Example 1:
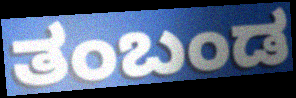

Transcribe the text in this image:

ತಂಬಂಡ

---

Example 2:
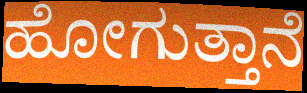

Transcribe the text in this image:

ಹೋಗುತ್ತಾನೆ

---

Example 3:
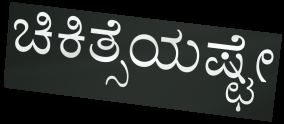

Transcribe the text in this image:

ಚಿಕಿತ್ಸೆಯಷ್ಟೇ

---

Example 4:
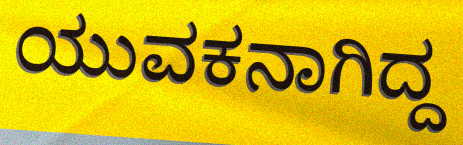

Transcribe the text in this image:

ಯುವಕನಾಗಿದ್ದ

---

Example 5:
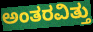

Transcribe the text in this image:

ಅಂತರವಿತ್ತು